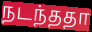
நடந்ததா